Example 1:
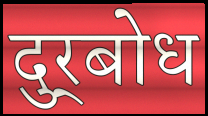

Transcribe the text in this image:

दुर्बोध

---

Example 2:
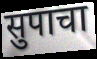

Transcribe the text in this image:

सुपाचा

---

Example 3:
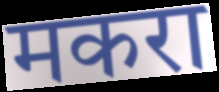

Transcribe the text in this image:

मकरा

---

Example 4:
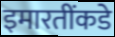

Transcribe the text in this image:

इमारतींकडे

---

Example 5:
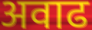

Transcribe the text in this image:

अवाढ